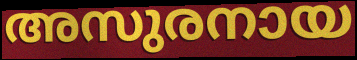
അസുരനായ